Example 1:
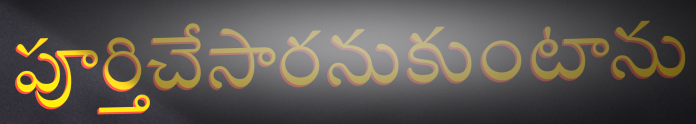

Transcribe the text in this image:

పూర్తిచేసారనుకుంటాను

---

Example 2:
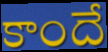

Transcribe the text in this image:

కాందే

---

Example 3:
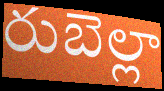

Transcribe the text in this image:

రుబెల్లా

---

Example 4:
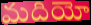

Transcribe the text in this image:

మదియో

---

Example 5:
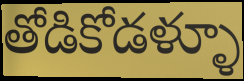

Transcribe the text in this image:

తోడికోడళ్ళూ